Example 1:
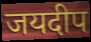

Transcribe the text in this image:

जयदीप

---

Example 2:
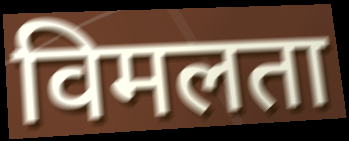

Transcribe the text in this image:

विमलता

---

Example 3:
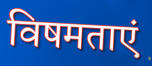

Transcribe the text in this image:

विषमताएं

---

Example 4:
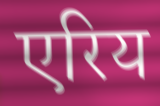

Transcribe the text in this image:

एरिय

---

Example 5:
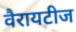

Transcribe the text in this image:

वैरायटीज